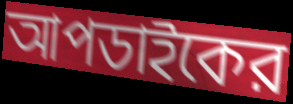
আপডাইকের